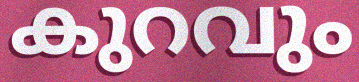
കുറവും